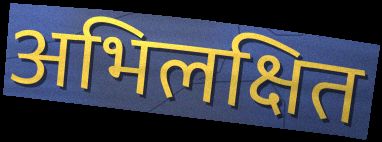
अभिलक्षित